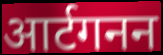
आर्टगनन